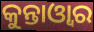
କୁନ୍ତାଓ୍ୱାର